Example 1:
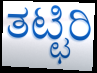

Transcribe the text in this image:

ತಟ್ಟಿರಿ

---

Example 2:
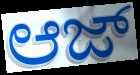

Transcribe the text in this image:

ಆಜ್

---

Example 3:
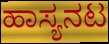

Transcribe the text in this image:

ಹಾಸ್ಯನಟ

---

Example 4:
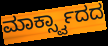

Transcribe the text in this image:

ಮಾರ್ಕ್ಸ್ವಾದದ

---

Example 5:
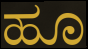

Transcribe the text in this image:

ಹೂ